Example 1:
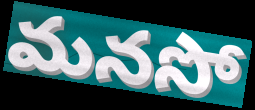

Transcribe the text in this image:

మనసో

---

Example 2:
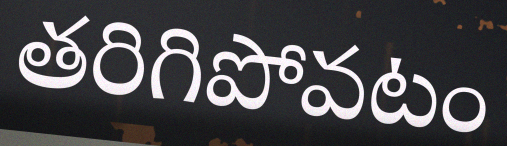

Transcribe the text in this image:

తరిగిపోవటం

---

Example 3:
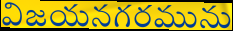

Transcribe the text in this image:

విజయనగరమును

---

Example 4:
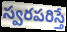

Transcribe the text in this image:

స్వరపరిస్తే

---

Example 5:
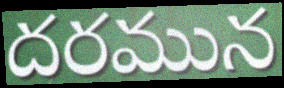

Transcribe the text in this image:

దరమున